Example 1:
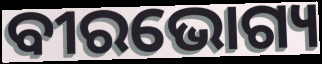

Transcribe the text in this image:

ବୀରଭୋଗ୍ୟ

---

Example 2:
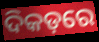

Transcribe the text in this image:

ଦିକଡ଼ରେ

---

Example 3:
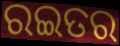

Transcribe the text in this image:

ରଇତର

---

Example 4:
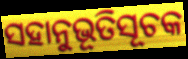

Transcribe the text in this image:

ସହାନୁଭୂତିସୂଚକ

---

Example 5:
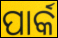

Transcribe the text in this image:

ପାର୍କ